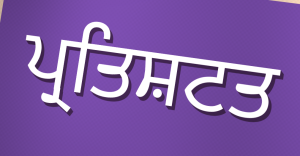
ਪ੍ਰਤਿਸ਼ਟਤ